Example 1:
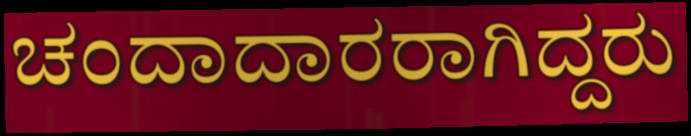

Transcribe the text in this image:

ಚಂದಾದಾರರಾಗಿದ್ದರು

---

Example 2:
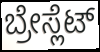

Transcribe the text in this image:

ಬ್ರೇಸ್ಲೆಟ್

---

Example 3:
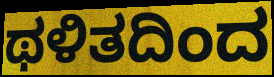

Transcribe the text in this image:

ಥಳಿತದಿಂದ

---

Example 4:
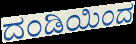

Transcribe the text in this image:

ದಂಡಿಯಿಂದ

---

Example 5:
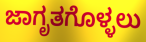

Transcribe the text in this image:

ಜಾಗೃತಗೊಳ್ಳಲು